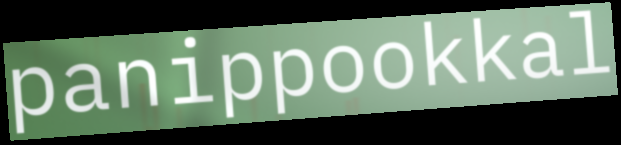
panippookkal